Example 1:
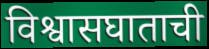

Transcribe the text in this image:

विश्वासघाताची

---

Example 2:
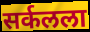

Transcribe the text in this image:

सर्कलला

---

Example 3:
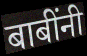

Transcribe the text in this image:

बाबींनी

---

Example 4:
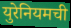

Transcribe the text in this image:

युरेनियमची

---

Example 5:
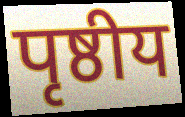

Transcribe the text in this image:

पृष्ठीय